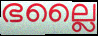
ഭല്ലൈ